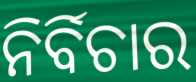
ନିର୍ବିଚାର